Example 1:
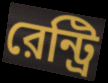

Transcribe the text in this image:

রেন্ট্রি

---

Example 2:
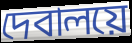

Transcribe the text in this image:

দেবালয়ে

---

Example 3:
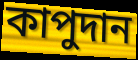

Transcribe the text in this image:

কাপুদান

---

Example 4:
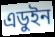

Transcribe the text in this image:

এডুইন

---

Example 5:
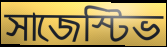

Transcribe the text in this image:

সাজেস্টিভ